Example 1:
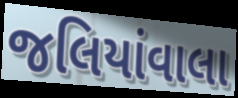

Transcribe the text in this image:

જલિયાંવાલા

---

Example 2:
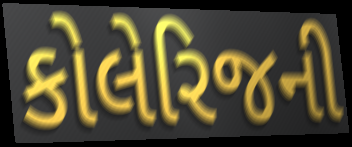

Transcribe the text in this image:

કોલેરિજની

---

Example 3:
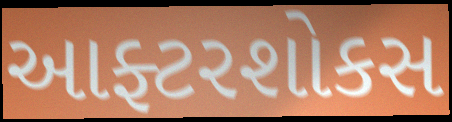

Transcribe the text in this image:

આફ્ટરશોકસ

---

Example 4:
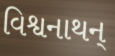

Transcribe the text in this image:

વિશ્વનાથન્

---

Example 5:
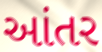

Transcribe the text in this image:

આંતર